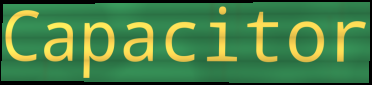
Capacitor